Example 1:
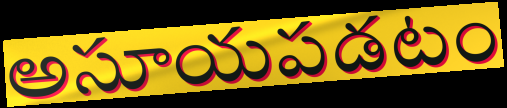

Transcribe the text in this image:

అసూయపడటం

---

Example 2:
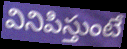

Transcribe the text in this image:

వినిపిస్తుంటే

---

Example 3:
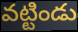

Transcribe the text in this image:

వట్టిండు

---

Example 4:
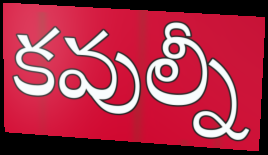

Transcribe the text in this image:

కవుల్నీ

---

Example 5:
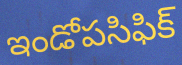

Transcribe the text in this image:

ఇండోపసిఫిక్